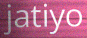
jatiyo